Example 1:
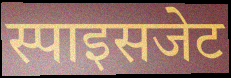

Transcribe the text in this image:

स्पाइसजेट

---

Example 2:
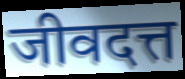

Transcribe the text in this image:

जीवदत्त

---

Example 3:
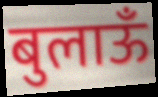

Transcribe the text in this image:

बुलाऊँ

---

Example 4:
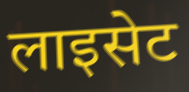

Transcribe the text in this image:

लाइसेट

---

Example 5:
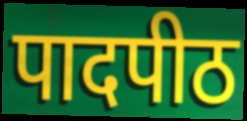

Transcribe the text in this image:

पादपीठ